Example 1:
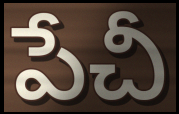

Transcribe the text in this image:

పేచీ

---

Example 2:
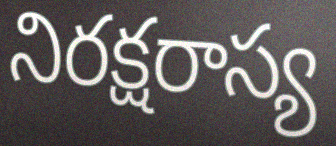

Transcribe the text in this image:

నిరక్షరాస్య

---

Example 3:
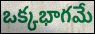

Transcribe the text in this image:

ఒక్కభాగమే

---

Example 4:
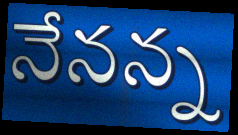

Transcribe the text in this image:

నేనన్న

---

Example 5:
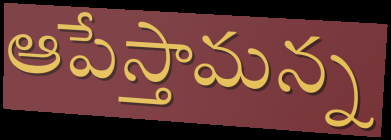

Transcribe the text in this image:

ఆపేస్తామన్న